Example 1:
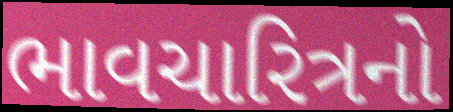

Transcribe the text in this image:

ભાવચારિત્રનો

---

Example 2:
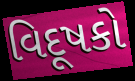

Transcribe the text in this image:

વિદૂષકો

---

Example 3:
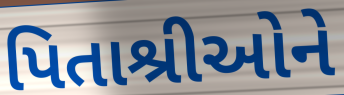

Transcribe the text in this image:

પિતાશ્રીઓને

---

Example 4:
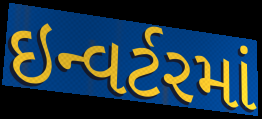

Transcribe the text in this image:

ઇન્વર્ટરમાં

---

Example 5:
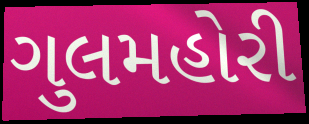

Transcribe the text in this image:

ગુલમહોરી